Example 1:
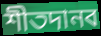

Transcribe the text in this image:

শীতদানব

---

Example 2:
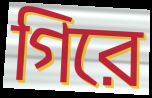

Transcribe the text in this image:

গিরে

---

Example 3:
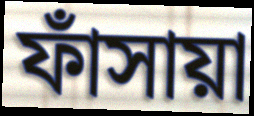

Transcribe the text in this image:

ফাঁসায়া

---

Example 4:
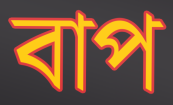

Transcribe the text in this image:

বাপ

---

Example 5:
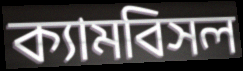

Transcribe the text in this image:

ক্যামবিসল